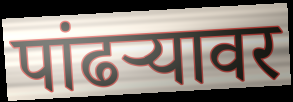
पांढर्‍यावर